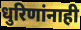
धुरिणांनाही